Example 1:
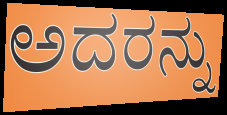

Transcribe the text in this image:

ಅದರನ್ನು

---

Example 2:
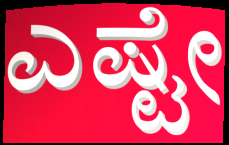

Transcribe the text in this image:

ಎಷ್ಟೇ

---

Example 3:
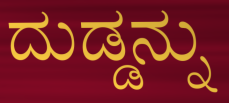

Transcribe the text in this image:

ದುಡ್ಡನ್ನು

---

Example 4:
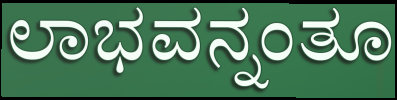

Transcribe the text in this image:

ಲಾಭವನ್ನಂತೂ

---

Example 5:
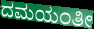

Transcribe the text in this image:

ದಮಯಂತೀ